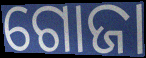
ଗୋଜା